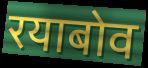
रयाबोव